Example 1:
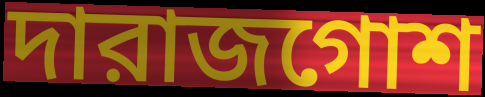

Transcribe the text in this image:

দারাজগোশ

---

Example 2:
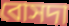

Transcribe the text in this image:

বোসদা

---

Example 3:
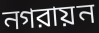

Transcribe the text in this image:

নগরায়ন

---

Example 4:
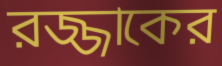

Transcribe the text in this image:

রজ্জাকের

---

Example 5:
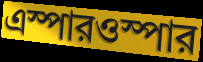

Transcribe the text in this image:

এস্পারওস্পার